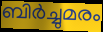
ബിർച്ചുമരം